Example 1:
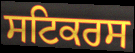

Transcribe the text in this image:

ਸਟਿਕਰਸ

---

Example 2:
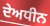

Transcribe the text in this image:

ਦੇਅਧੀਨ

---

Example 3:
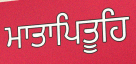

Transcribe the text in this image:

ਮਾਤਾਪਿਤੂਹਿ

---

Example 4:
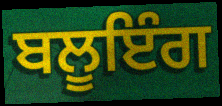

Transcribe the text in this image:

ਬਲੂਇੰਗ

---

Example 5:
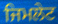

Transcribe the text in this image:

ਜਿਮਲੇਟ